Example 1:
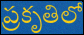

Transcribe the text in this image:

ప్రకృతిలో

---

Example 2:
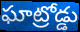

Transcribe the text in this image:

ఘాట్రోడ్డు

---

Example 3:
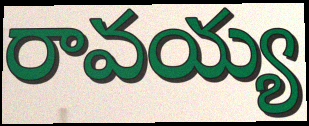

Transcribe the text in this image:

రావయ్య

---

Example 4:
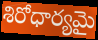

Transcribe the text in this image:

శిరోధార్యమై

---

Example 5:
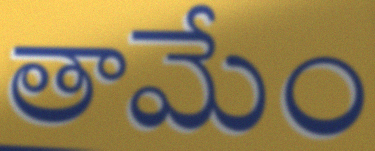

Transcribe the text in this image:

తామేం